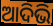
ଆଦିଭି